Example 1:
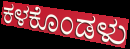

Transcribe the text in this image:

ಕಳಕೊಂಡಳು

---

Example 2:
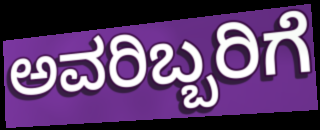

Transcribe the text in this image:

ಅವರಿಬ್ಬರಿಗೆ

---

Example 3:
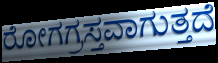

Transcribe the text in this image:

ರೋಗಗ್ರಸ್ತವಾಗುತ್ತದೆ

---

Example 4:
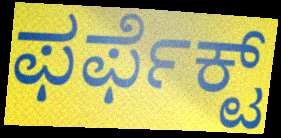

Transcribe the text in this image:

ಫರ್ಫೆಕ್ಟ್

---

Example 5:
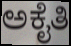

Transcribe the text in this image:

ಅಕೈತಿ